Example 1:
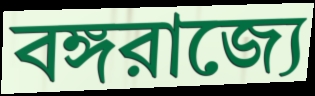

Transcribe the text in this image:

বঙ্গরাজ্যে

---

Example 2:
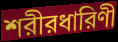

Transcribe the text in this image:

শরীরধারিণী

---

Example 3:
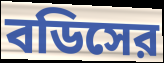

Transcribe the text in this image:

বডিসের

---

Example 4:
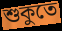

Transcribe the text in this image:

শুকুতে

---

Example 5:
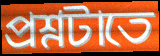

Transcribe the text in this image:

প্রশ্নটাতে